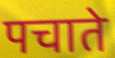
पचाते